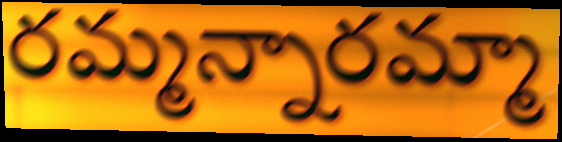
రమ్మన్నారమ్మా